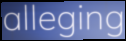
alleging